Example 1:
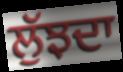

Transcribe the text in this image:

ਲੁੱਝਦਾ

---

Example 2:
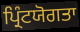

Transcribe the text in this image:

ਪ੍ਰਿੰਟਯੋਗਤਾ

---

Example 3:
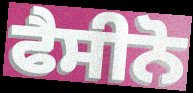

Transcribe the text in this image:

ਫੈਸੀਨੋ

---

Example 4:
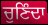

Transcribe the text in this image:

ਚੁਣਿੰਦਾ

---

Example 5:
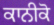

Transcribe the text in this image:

ਕਾਨੀਕੋ